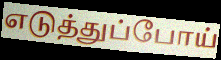
எடுத்துப்போய்